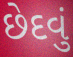
છેદવું